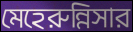
মেহেরুন্নিসার